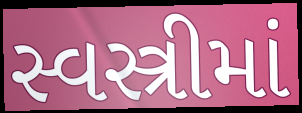
સ્વસ્ત્રીમાં